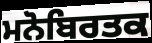
ਮਨੋਬਿਰਤਕ